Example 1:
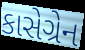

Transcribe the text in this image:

કાસેગ્રેન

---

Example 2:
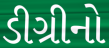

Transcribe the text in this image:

ડીગ્રીનો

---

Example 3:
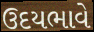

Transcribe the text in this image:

ઉદયભાવે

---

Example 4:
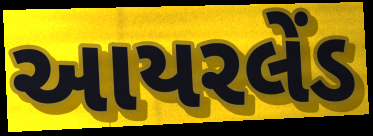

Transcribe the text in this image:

આયરલેંડ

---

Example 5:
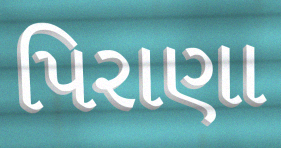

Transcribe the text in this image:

પિરાણા